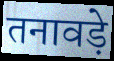
तनावड़े